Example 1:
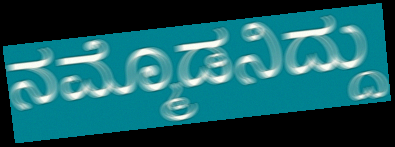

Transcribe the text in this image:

ನಮ್ಮೊಡನಿದ್ದು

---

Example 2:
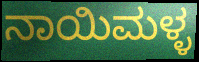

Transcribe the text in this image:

ನಾಯಿಮಳ್ಳ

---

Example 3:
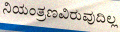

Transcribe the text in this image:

ನಿಯಂತ್ರಣವಿರುವುದಿಲ್ಲ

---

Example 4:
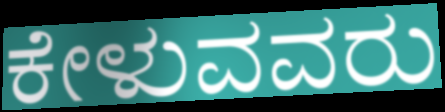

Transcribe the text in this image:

ಕೇಳುವವರು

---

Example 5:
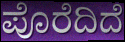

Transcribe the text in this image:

ಪೊರೆದಿದೆ